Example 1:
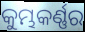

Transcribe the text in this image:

କୁମ୍ଭକର୍ଣ୍ଣର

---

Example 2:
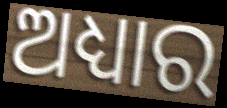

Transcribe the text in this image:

ଅଧ୍ୟାର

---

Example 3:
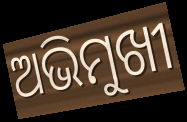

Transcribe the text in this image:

ଅଭିମୁଖୀ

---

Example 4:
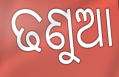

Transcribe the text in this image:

ଢଣୁଆ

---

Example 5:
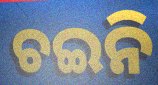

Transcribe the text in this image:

ଚଇନି